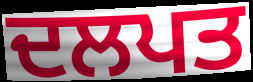
ਦਲਪਤ